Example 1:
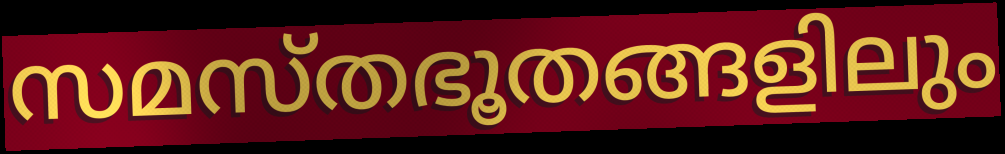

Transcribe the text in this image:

സമസ്തഭൂതങ്ങളിലും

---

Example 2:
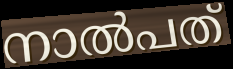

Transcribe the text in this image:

നാൽപത്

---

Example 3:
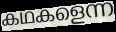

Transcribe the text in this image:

കഥകളെന്ന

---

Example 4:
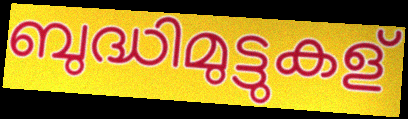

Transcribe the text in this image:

ബുദ്ധിമുട്ടുകള്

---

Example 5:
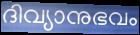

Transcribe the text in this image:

ദിവ്യാനുഭവം